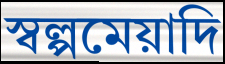
স্বল্পমেয়াদি